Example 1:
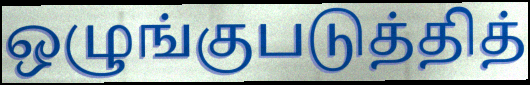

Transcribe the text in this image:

ஒழுங்குபடுத்தித்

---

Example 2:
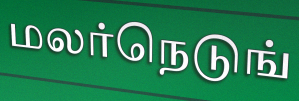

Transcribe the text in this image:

மலர்நெடுங்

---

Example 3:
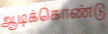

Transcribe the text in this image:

ஆடிக்கொண்டு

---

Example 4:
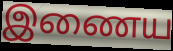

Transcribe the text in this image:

இணைய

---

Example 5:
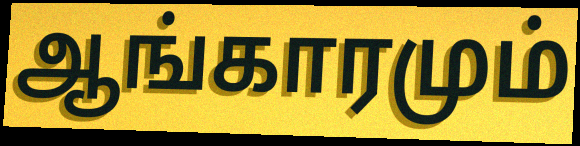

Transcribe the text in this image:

ஆங்காரமும்